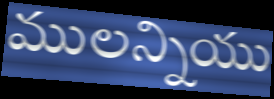
ములన్నియు